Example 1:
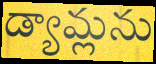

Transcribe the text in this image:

డ్యామ్లను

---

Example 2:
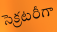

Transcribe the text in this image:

సెక్రటరీగా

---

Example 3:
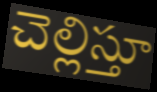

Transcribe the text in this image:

చెల్లిస్తూ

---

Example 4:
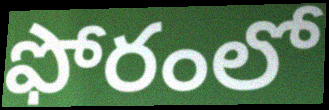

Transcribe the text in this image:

ఫోరంలో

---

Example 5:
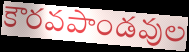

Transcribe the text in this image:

కౌరవపాండవుల